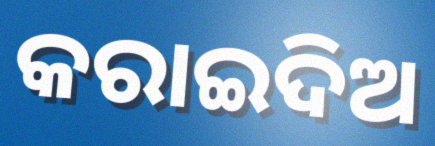
କରାଇଦିଅ